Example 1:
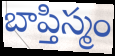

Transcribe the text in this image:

బాప్తిస్మం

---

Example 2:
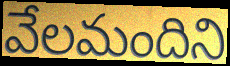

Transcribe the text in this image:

వేలమందిని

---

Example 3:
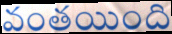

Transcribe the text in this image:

వంతయింది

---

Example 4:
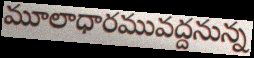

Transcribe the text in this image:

మూలాధారమువద్దనున్న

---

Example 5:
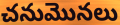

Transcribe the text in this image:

చనుమొనలు